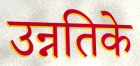
उन्नतिके